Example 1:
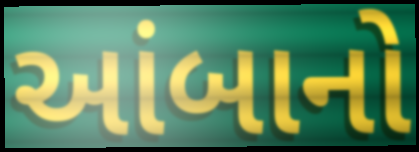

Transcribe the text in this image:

આંબાનો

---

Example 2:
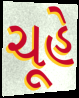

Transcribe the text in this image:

ચૂહે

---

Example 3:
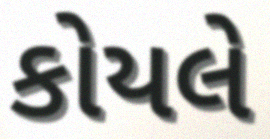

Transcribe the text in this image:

કોયલે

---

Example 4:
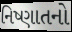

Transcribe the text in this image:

નિષ્ણાતનો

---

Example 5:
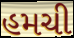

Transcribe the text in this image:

હમચી